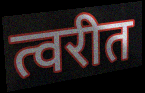
त्वरीत